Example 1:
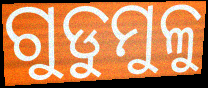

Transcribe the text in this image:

ଗୁଡୁମୁଳୁ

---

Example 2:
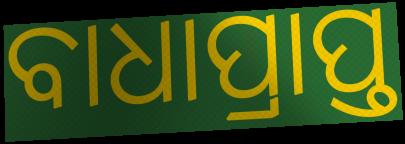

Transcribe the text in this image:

ବାଧାପ୍ରାପ୍ତ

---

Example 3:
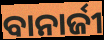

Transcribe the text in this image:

ବାନାର୍ଜୀ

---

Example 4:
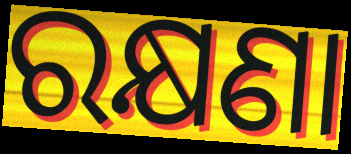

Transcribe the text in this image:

ରକ୍ଷଣା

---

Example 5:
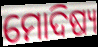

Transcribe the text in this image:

ମୋଦିଷ୍ୟ